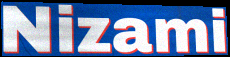
Nizami